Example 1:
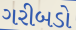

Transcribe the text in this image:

ગરીબડો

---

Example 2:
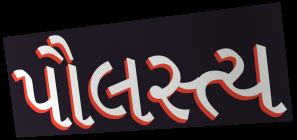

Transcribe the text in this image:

પૌલસ્ત્ય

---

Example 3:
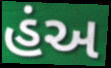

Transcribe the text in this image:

હંઅ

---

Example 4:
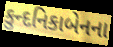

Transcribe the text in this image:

કુન્દનિકાબેનના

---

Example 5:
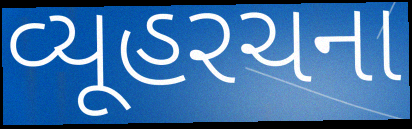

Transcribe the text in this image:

વ્યૂહરચના